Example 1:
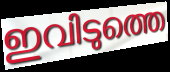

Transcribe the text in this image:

ഇവിടുത്തെ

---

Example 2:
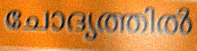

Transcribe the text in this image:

ചോദ്യത്തിൽ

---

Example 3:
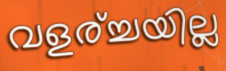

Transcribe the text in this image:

വളര്ച്ചയില്ല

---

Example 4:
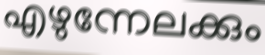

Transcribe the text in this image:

എഴുന്നേലക്കും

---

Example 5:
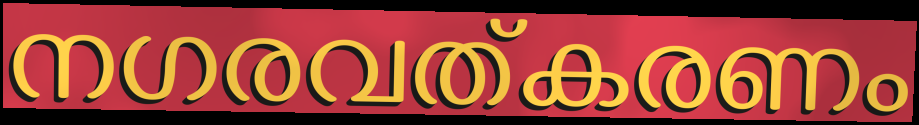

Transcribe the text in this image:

നഗരവത്കരണം